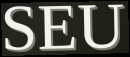
SEU